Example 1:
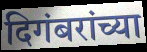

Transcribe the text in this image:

दिगंबरांच्या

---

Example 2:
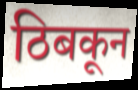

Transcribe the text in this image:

ठिबकून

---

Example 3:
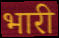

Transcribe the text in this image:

भारी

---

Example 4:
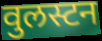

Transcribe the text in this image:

वुलस्टन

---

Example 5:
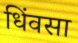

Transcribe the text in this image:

धिंवसा